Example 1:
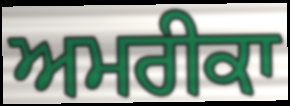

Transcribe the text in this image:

ਅਮਰੀਕਾ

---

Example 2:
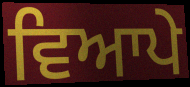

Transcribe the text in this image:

ਵਿਆਪੇ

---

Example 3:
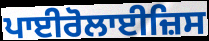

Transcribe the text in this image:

ਪਾਈਰੋਲਾਈਜ਼ਿਸ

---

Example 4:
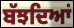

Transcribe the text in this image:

ਬੱਝਦਿਆਂ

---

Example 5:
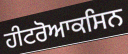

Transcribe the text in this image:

ਹੀਟਰੋਆਕਸਿਨ